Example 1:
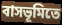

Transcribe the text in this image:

বাসভূমিতে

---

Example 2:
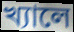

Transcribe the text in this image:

খ্যালে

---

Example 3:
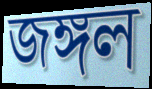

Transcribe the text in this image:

জঙ্গল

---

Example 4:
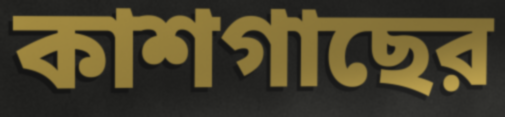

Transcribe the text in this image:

কাশগাছের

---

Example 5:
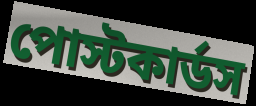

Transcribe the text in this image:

পোস্টকার্ডস